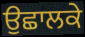
ਉਛਾਲਕੇ